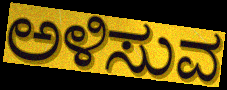
ಅಳಿಸುವ